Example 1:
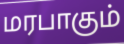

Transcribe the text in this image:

மரபாகும்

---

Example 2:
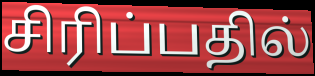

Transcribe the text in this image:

சிரிப்பதில்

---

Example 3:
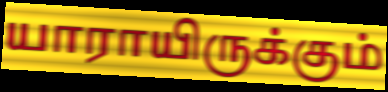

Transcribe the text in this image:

யாராயிருக்கும்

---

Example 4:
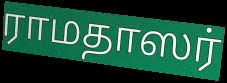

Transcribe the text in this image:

ராமதாஸர்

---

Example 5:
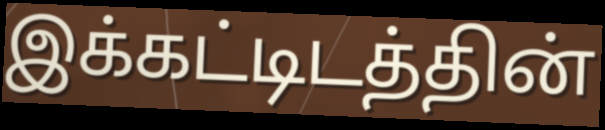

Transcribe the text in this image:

இக்கட்டிடத்தின்